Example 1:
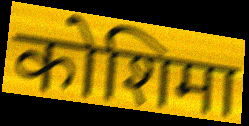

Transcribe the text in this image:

कोशिमा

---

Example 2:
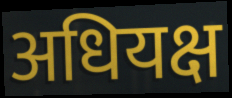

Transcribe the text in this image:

अधियक्ष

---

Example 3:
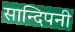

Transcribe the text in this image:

सान्दिपनी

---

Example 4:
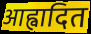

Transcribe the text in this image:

आह्वादित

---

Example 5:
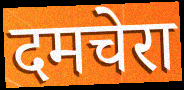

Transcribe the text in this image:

दमचेरा